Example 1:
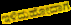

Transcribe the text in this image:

ಇಳಿದುಹೋದಾಗ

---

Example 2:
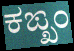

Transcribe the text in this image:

ಕಙ್ಖಂ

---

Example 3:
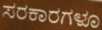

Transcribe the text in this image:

ಸರಕಾರಗಳೂ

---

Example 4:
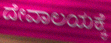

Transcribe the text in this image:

ದೇವಾಲಯಕ್ಕೆ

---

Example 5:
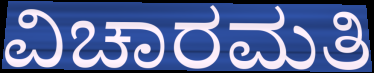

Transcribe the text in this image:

ವಿಚಾರಮತಿ